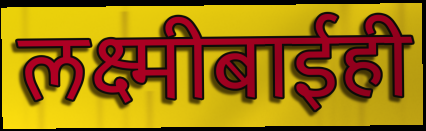
लक्ष्मीबाईही